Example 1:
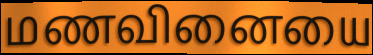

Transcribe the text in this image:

மணவினையை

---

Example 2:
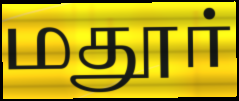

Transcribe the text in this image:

மதூர்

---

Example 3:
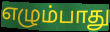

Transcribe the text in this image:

எழும்பாது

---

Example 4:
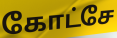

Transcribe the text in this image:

கோட்சே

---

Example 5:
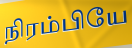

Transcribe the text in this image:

நிரம்பியே